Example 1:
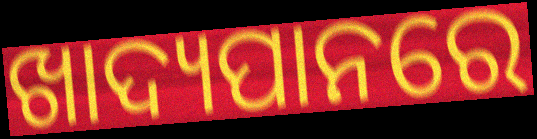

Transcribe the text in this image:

ଖାଦ୍ୟପାନରେ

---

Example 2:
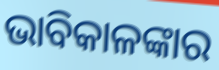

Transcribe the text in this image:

ଭାବିକାଳଙ୍କାର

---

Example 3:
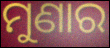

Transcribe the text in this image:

ମୁଣାର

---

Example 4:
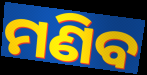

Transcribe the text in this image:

ମଣିବ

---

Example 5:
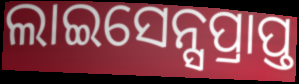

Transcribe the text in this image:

ଲାଇସେନ୍ସପ୍ରାପ୍ତ